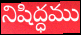
నిషిద్ధము